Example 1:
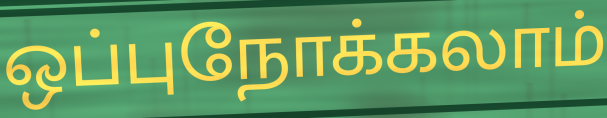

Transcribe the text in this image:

ஒப்புநோக்கலாம்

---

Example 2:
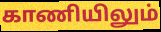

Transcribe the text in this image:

காணியிலும்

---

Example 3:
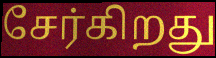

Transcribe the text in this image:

சேர்கிறது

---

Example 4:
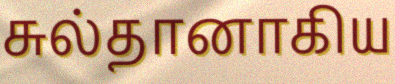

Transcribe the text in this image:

சுல்தானாகிய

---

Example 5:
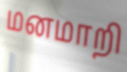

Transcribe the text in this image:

மனமாறி